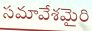
సమావేశమైరి